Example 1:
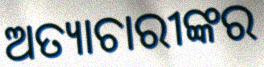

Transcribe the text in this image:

ଅତ୍ୟାଚାରୀଙ୍କର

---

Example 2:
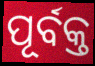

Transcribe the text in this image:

ପୂର୍ବକ୍ତ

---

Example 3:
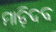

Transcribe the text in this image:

ମାଡ଼ିଦବ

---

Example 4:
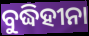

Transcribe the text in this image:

ବୁଦ୍ଧିହୀନା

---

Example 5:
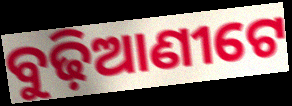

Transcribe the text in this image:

ବୁଢ଼ିଆଣୀଟେ